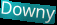
Downy